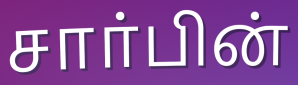
சார்பின்